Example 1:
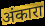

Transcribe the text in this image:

अंकारा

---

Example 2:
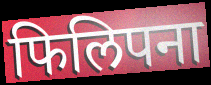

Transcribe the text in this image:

फिलिपना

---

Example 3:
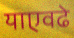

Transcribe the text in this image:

याएवढे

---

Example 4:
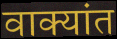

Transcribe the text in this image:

वाक्यांत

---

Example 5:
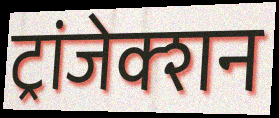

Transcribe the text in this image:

ट्रांजेक्शन